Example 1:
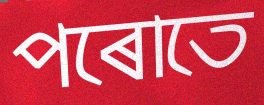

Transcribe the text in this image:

পৰোতে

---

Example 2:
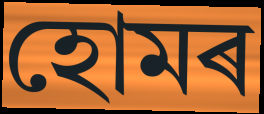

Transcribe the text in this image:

হোমৰ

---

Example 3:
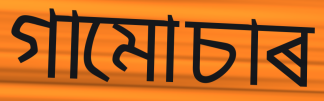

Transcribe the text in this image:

গামোচাৰ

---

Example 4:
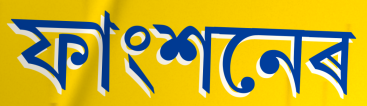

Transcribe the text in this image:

ফাংশনেৰ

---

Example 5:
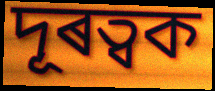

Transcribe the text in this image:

দূৰত্বক